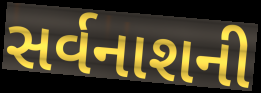
સર્વનાશની